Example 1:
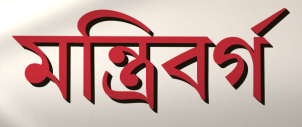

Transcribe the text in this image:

মন্ত্রিবর্গ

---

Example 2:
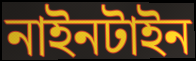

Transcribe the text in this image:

নাইনটাইন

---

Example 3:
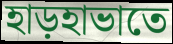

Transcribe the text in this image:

হাড়হাভাতে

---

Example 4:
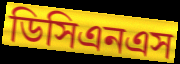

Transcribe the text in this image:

ডিসিএনএস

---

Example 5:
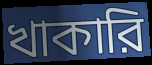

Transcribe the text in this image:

খাকারি